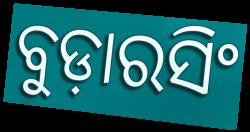
ବୁଡ଼ାରସିଂ